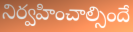
నిర్వహించాల్సిందే